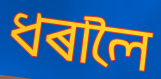
ধৰালৈ